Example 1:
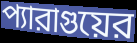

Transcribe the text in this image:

প্যারাগুয়ের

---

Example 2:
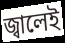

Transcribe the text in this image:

জ্বালেই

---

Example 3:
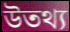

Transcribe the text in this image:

উতথ্য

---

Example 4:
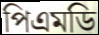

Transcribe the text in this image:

পিএমডি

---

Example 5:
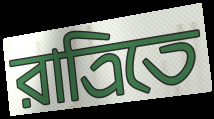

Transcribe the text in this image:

রাত্রিতে